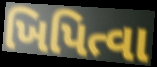
ખિપિત્વા